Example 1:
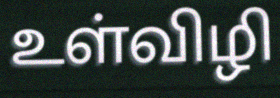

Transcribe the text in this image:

உள்விழி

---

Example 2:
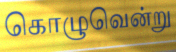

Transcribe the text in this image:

கொழுவென்று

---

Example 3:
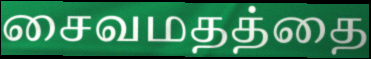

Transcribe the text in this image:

சைவமதத்தை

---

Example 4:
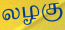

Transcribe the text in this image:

லழகு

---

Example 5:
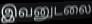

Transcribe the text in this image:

இவனுடலை